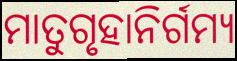
ମାତୁଗୃହାନିର୍ଗମ୍ୟ